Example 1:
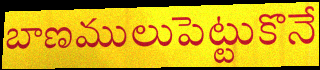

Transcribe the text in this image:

బాణములుపెట్టుకొనే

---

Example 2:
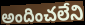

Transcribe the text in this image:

అందించలేని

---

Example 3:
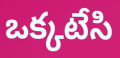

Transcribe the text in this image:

ఒక్కటేసి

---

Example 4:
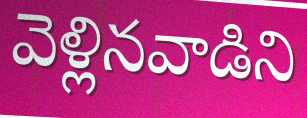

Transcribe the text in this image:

వెళ్లినవాడిని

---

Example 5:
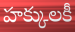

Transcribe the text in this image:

హక్కులకీ